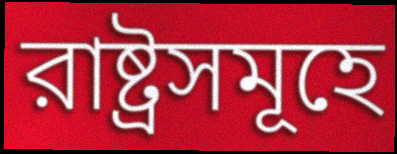
রাষ্ট্রসমূহে